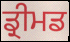
ਡ੍ਰੀਮਡ